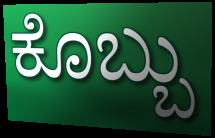
ಕೊಬ್ಬು